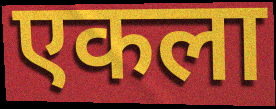
एकला